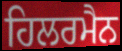
ਹਿਲਰਮੈਨ